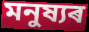
মনুষ্যৰ